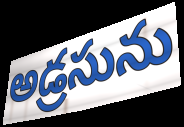
అడ్రసును